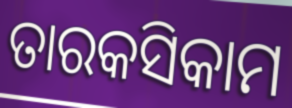
ତାରକସିକାମ